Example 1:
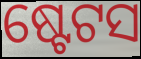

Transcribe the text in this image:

ଷ୍ଟେଟସ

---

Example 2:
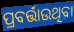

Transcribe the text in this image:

ପ୍ରବର୍ତ୍ତାଉଥିବା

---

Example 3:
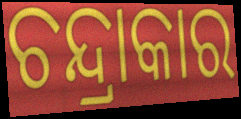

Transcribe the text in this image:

ଚନ୍ଦ୍ରାକାର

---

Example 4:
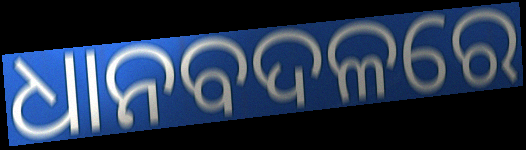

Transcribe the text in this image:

ଧାନବଦଳରେ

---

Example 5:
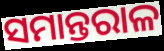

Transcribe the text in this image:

ସମାନ୍ତରାଳ